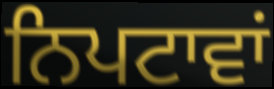
ਨਿਪਟਾਵਾਂ